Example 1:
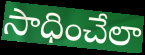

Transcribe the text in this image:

సాధించేలా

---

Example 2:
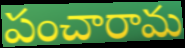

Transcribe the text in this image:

పంచారామ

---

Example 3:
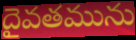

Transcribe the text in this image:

దైవతమును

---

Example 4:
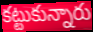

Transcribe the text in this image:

కట్టుకున్నారు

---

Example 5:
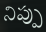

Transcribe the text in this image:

నిప్పు